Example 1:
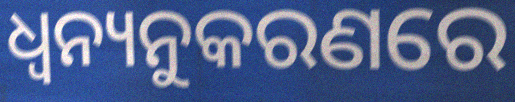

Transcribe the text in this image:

ଧ୍ଵନ୍ୟନୁକରଣରେ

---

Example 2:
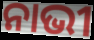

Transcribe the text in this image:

ନାଭୀ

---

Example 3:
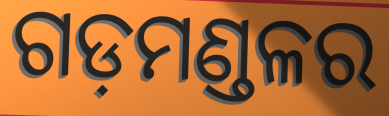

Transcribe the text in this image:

ଗଡ଼ମଣ୍ଡଳର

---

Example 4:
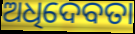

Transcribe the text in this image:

ଅଧିଦେବତା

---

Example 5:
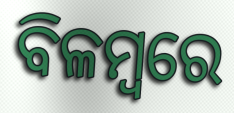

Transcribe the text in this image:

ବିଳମ୍ୱରେ